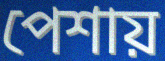
পেশায়